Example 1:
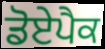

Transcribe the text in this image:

ਡੋਏਪੈਕ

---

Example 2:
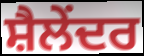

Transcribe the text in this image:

ਸ਼ੈਲੇਂਦਰ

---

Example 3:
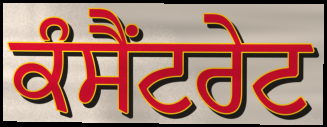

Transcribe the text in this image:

ਕੰਸੈਂਟਰੇਟ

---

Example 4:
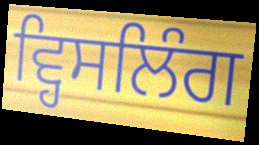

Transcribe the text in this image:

ਵ੍ਹਿਸਲਿੰਗ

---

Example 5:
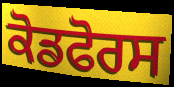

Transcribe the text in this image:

ਕੋਡਫੋਰਸ